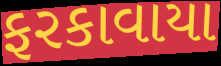
ફરકાવાયા